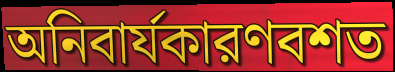
অনিবার্যকারণবশত